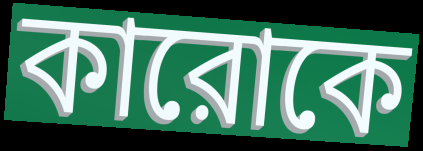
কারোকে